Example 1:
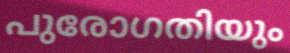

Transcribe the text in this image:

പുരോഗതിയും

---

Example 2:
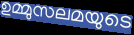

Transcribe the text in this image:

ഉമ്മുസലമയുടെ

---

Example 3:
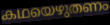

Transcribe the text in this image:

കഥയെഴുതണം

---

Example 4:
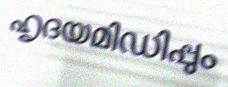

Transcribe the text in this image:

ഹൃദയമിഡിപ്പും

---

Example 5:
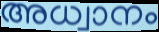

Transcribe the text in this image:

അധ്വാനം